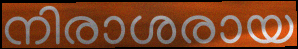
നിരാശരായ